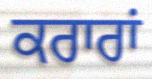
ਕਰਾਰਾਂ